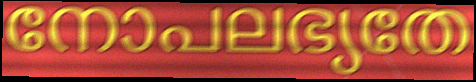
നോപലഭ്യതേ